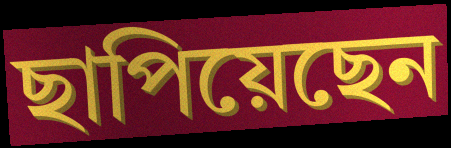
ছাপিয়েছেন